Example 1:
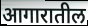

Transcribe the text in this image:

आगारातील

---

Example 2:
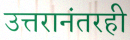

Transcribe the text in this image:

उत्तरानंतरही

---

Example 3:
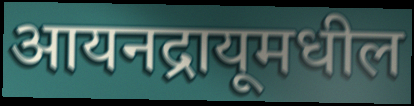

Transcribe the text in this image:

आयनद्रायूमधील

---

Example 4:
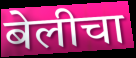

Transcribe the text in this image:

बेलीचा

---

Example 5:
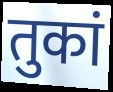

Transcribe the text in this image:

तुकां